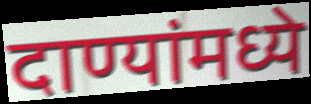
दाण्यांमध्ये